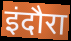
इंदौरा